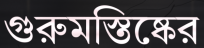
গুরুমস্তিষ্কের